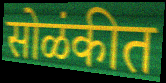
सोळंकीत